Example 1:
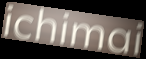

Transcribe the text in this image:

ichimai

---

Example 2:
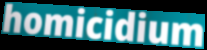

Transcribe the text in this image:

homicidium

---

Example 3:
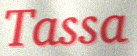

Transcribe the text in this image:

Tassa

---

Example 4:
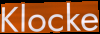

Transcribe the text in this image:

Klocke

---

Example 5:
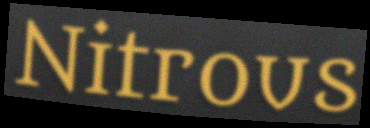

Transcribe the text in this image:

Nitrous